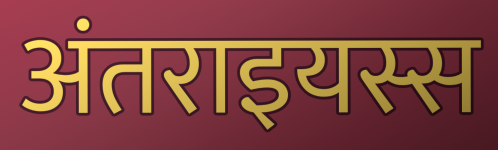
अंतराइयस्स